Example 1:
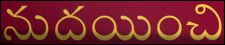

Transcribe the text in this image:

నుదయించి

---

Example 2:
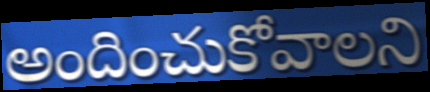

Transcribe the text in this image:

అందించుకోవాలని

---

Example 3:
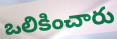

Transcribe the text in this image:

ఒలికించారు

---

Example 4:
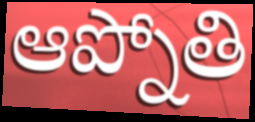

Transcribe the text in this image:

ఆప్నోతి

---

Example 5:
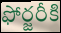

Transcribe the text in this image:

ఫోర్జరీకి